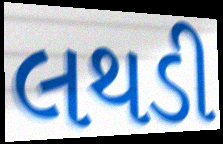
લથડી